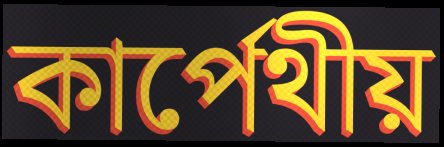
কার্পেথীয়